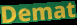
Demat